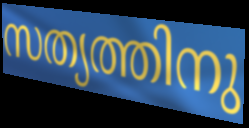
സത്യത്തിനു